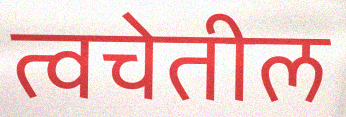
त्वचेतील